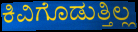
ಕಿವಿಗೊಡುತ್ತಿಲ್ಲ